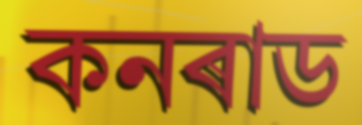
কনৰাড